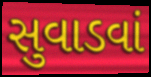
સુવાડવાં